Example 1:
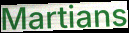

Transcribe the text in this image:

Martians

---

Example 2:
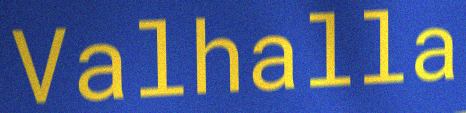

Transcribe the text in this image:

Valhalla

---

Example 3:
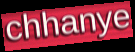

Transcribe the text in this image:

chhanye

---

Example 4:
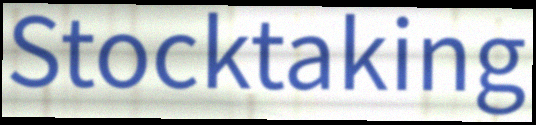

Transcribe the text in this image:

Stocktaking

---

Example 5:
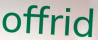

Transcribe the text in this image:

offrid